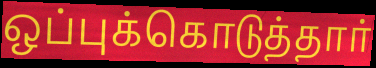
ஒப்புக்கொடுத்தார்